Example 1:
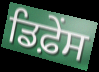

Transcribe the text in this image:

ਡਿਫ਼ੇਂਸ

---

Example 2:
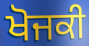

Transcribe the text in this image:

ਖੋਜਕੀ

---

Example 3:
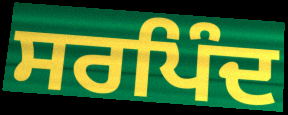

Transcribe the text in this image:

ਸਰਪਿੰਦ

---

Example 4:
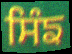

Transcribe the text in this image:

ਸਿੰਙ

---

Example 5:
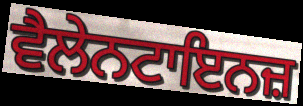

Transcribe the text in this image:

ਵੈਲੇਨਟਾਇਨਜ਼